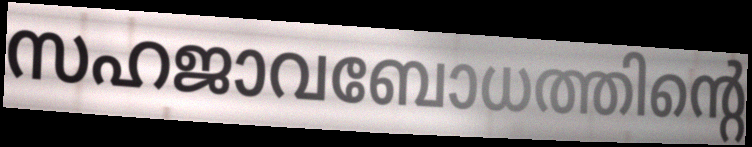
സഹജാവബോധത്തിന്റെ